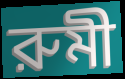
ৰুমী